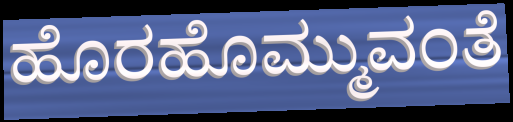
ಹೊರಹೊಮ್ಮುವಂತೆ